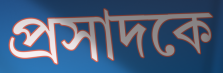
প্রসাদকে